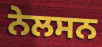
ਨੇਲਸਨ